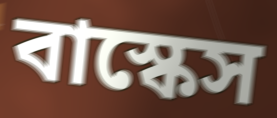
বাস্কেস